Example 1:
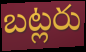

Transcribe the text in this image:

బట్లరు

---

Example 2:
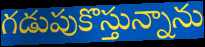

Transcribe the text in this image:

గడుపుకొస్తున్నాను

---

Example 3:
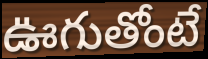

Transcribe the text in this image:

ఊగుతోంటే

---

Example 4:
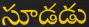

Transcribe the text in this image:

సూడడు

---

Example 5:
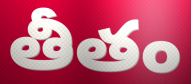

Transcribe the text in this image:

తీతం